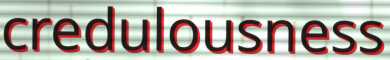
credulousness